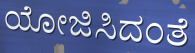
ಯೋಜಿಸಿದಂತೆ